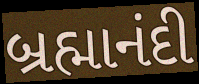
બ્રહ્માનંદી